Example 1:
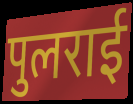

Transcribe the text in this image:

पुलराई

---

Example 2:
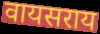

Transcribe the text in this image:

वायसराय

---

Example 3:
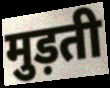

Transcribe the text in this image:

मुड़ती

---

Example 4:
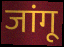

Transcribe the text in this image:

जांगू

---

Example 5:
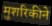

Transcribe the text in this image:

मुशरिकीने